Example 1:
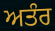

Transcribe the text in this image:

ਅਤੰਰ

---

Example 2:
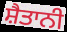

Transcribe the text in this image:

ਸ਼ੈਤਾਨੀ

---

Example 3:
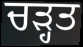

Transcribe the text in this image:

ਚੜ੍ਹਤ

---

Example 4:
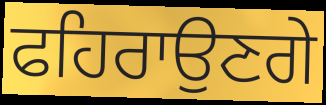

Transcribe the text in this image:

ਫਹਿਰਾਉਣਗੇ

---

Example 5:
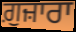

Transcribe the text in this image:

ਗ਼ੁਜ਼ਾਰਾ